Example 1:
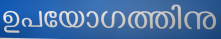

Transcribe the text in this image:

ഉപയോഗത്തിനു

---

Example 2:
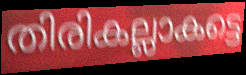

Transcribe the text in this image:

തിരികല്ലാകട്ടെ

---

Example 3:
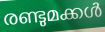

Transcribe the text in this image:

രണ്ടുമക്കൾ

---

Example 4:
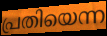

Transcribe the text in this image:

പ്രതിയെന്ന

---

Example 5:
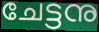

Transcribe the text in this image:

ചേട്ടനു